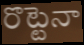
రొట్టెనా